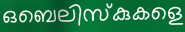
ഒബെലിസ്കുകളെ